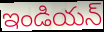
ఇండియన్